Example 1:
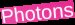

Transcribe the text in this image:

Photons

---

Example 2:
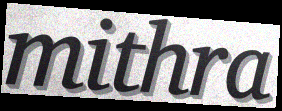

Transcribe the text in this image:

mithra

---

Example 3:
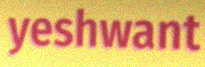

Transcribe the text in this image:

yeshwant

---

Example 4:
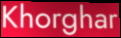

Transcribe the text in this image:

Khorghar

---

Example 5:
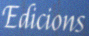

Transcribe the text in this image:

Edicions